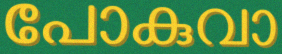
പോകുവാ